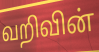
வறிவின்